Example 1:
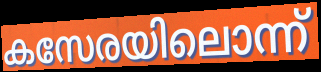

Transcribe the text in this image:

കസേരയിലൊന്ന്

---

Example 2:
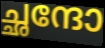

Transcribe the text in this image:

ച്ഛന്ദോ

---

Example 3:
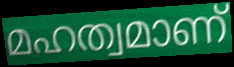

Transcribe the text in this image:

മഹത്വമാണ്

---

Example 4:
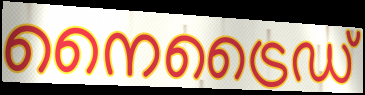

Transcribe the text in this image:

നൈട്രൈഡ്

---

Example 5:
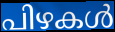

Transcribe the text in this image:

പിഴകൾ